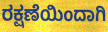
ರಕ್ಷಣೆಯಿಂದಾಗಿ